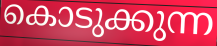
കൊടുക്കുന്ന